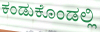
ಕಂಡುಕೊಂಡಲ್ಲಿ